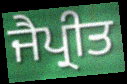
ਜੈਪ੍ਰੀਤ